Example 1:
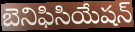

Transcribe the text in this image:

బెనిఫిసియేషన్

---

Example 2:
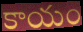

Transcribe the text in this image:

కాయం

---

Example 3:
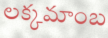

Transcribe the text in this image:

లక్కమాంబ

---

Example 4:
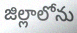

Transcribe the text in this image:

జిల్లాలోను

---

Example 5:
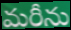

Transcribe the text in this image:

మరీను